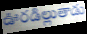
ఊరడిల్లుతాడు